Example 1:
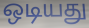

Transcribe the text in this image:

ஒடியது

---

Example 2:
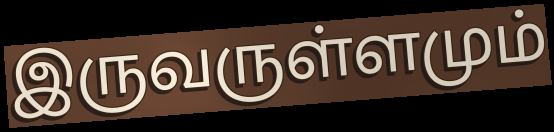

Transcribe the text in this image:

இருவருள்ளமும்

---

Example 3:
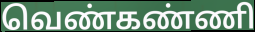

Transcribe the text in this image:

வெண்கண்ணி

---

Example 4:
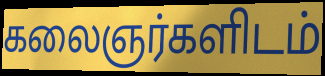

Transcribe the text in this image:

கலைஞர்களிடம்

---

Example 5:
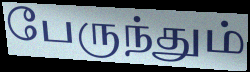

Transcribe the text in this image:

பேருந்தும்